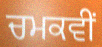
ਚਮਕਵੀਂ